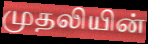
முதலியின்